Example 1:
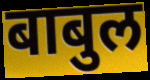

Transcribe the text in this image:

बाबुल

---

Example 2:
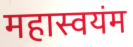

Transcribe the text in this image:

महास्वयंम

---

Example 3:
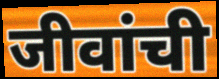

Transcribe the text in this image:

जीवांची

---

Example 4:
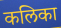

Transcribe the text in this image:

कलिका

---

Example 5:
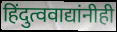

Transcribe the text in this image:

हिंदुत्ववाद्यांनीही